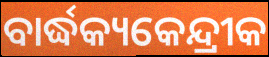
ବାର୍ଦ୍ଧକ୍ୟକେନ୍ଦ୍ରୀକ